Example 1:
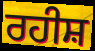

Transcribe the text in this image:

ਰਹੀਸ਼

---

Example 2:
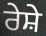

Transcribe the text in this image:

ਰੇਸ਼ੇ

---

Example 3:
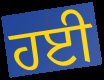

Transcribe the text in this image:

ਹਈ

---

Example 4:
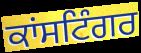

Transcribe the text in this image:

ਕਾਂਸਟਿੰਗਰ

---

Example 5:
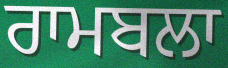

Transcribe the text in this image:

ਰਾਮਬਲਾ